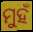
ମୁହଁ